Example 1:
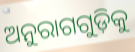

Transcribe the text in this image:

ଅନୁରାଗଗୁଡ଼ିକୁ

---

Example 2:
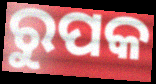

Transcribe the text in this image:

ରୁପକ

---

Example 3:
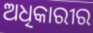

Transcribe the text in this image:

ଅଧିକାରୀର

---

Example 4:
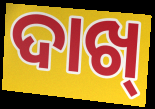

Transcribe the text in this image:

ଦାଖ୍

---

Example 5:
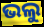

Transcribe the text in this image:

ଭଲୁ